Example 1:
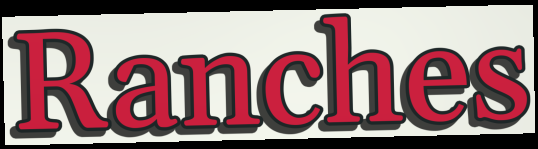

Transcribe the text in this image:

Ranches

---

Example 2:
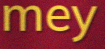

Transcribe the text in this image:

mey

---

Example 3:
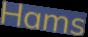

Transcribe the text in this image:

Hams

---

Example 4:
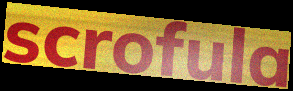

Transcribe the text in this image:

scrofula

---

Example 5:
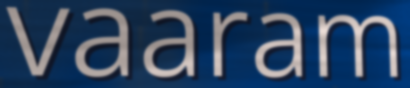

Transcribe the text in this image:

vaaram